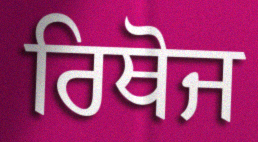
ਰਿਥੋਜ